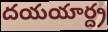
దయయార్ద్ర